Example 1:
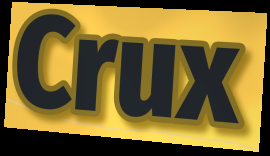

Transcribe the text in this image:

Crux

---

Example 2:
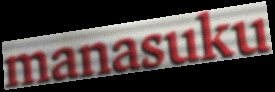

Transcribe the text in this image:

manasuku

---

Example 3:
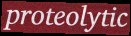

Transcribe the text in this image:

proteolytic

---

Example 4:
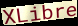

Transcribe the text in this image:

XLibre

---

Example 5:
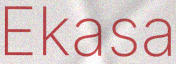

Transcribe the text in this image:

Ekasa